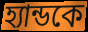
হ্যান্ডকে